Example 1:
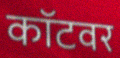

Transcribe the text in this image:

कॉटवर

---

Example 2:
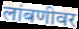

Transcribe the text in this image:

लांबणीवर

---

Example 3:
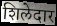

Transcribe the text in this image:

शिलेदार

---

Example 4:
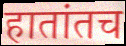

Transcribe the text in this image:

हातांतच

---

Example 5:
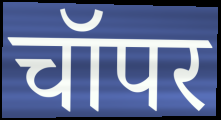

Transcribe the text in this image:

चॉपर